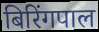
बिरिंगपाल